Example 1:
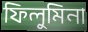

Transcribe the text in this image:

ফিলুমিনা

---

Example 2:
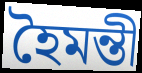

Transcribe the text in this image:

হৈমন্তী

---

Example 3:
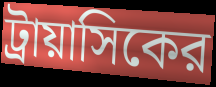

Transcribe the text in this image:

ট্রায়াসিকের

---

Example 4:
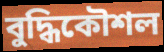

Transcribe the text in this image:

বুদ্ধিকৌশল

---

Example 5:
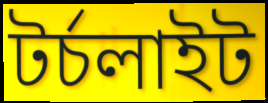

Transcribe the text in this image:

টর্চলাইট